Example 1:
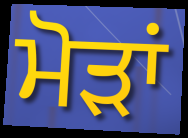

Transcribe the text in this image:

ਮੋੜਾਂ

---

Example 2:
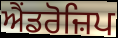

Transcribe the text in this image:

ਐਂਡਰੋਜ਼ਿਪ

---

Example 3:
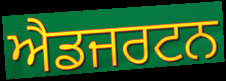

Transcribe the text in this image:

ਐਡਜਰਟਨ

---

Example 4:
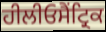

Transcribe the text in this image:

ਹੀਲੀਓਸੈਂਟ੍ਰਿਕ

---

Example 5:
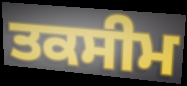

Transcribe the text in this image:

ਤਕਸੀਮ